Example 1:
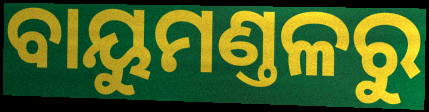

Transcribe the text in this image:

ବାୟୁମଣ୍ତଳରୁ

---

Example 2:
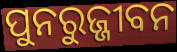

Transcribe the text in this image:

ପୁନରୁଜ୍ଜୀବନ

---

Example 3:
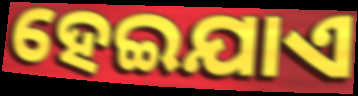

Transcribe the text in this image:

ହେଇଯାଏ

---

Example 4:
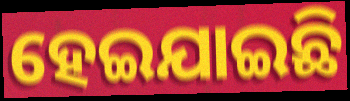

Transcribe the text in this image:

ହେଇଯାଇଛି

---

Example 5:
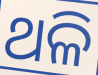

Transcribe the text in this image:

ଥଳି